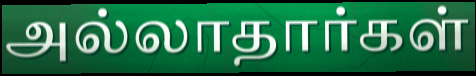
அல்லாதார்கள்